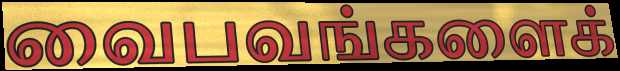
வைபவங்களைக்